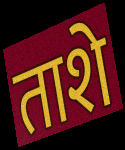
ताशे